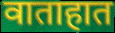
वाताहात